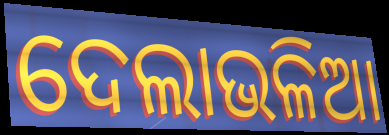
ଦେଲାଭଳିଆ